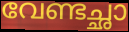
വേണ്ടച്ഛാ